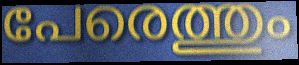
പേരെത്തും